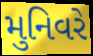
મુનિવરે